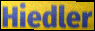
Hiedler